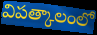
విపత్కాలంలో